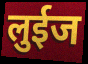
लुईज